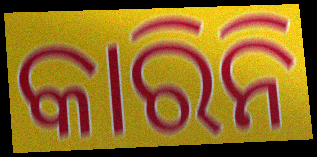
କାରିନି